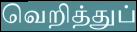
வெறித்துப்